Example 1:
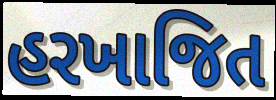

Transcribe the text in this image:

હરખાજિત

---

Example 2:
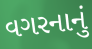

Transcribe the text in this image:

વગરનાનું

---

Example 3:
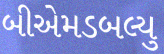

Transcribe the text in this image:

બીએમડબલ્યુ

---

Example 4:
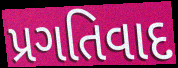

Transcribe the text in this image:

પ્રગતિવાદ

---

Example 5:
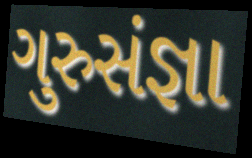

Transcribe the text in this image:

ગુરુસંજ્ઞા